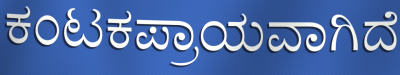
ಕಂಟಕಪ್ರಾಯವಾಗಿದೆ